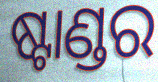
ଷ୍ଟାଣ୍ଡର